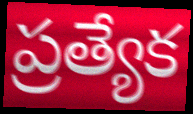
ప్రత్యేక